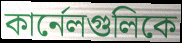
কার্নেলগুলিকে